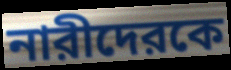
নারীদেরকে